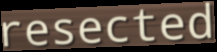
resected